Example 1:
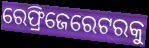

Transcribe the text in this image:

ରେଫ୍ରିଜେରେଟରକୁ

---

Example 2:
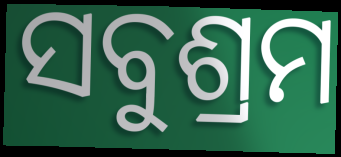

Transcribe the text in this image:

ସବୁଶ୍ରମ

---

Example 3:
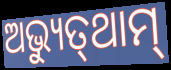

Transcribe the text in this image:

ଅଭ୍ୟୁତ୍‌ଥାମ୍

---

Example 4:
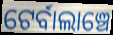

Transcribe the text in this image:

ଟେର୍ବାଲାଞ୍ଚେ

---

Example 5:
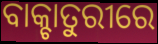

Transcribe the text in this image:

ବାକ୍ଚାତୁରୀରେ